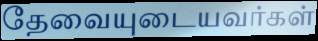
தேவையுடையவர்கள்